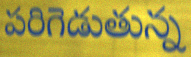
పరిగెడుతున్న